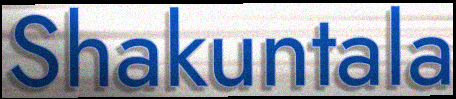
Shakuntala